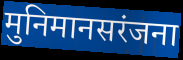
मुनिमानसरंजना